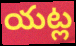
యట్ల